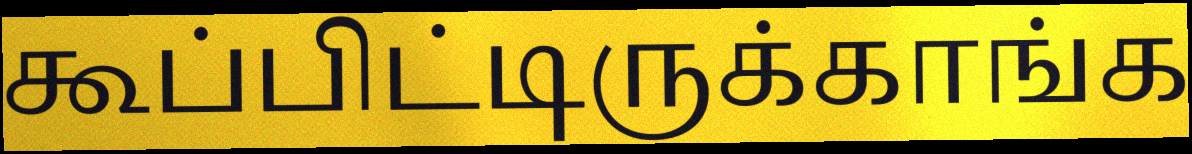
கூப்பிட்டிருக்காங்க